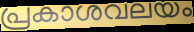
പ്രകാശവലയം